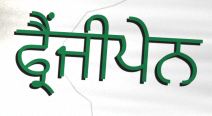
ਫ੍ਰੈਂਜੀਪੇਨ